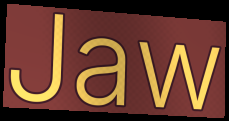
Jaw